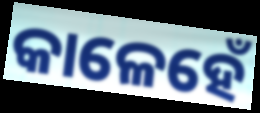
କାଳେହେଁ